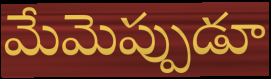
మేమెప్పుడూ